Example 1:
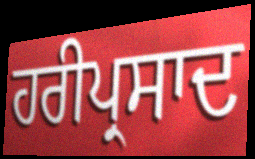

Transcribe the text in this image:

ਹਰੀਪ੍ਰਸਾਦ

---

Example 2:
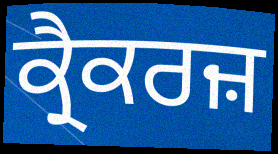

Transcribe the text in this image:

ਕ੍ਰੈਕਰਜ਼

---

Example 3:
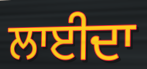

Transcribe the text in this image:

ਲਾਈਦਾ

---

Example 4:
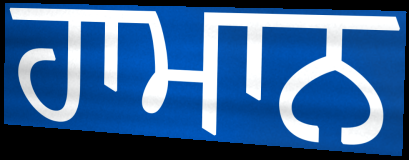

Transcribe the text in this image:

ਹਾਮਾਨ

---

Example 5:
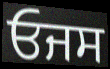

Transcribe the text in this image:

ਓਜਸ